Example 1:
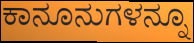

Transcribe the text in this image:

ಕಾನೂನುಗಳನ್ನೂ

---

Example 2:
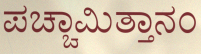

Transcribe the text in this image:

ಪಚ್ಚಾಮಿತ್ತಾನಂ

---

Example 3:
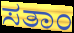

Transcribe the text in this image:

ಸತಾಂ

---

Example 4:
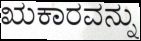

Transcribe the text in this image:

ಋಕಾರವನ್ನು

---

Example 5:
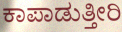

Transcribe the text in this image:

ಕಾಪಾಡುತ್ತೀರಿ